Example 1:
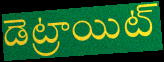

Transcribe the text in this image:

డెట్రాయిట్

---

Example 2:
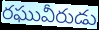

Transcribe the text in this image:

రఘువీరుడు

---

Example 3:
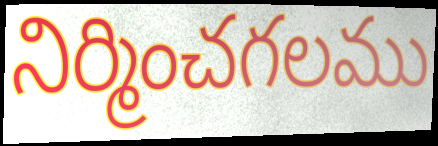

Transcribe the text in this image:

నిర్మించగలము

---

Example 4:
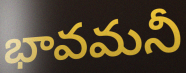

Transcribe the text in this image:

భావమనీ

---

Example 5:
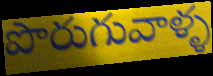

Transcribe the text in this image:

పొరుగువాళ్ళ